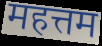
महत्तम